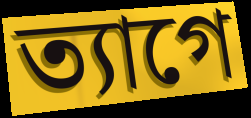
ত্যাগে